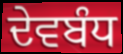
ਦੇਵਬੰਧ